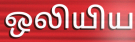
ஒலியிய